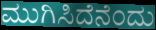
ಮುಗಿಸಿದೆನೆಂದು